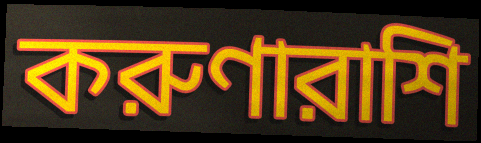
করুণারাশি